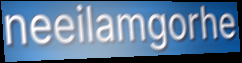
neeilamgorhe